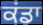
ਕਂਡਾ